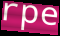
rpe